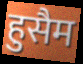
हुसैम